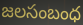
జలసంబంధ